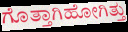
ಗೊತ್ತಾಗಿಹೋಗಿತ್ತು